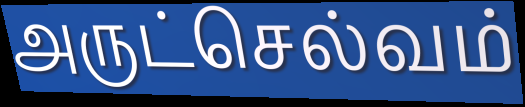
அருட்செல்வம்